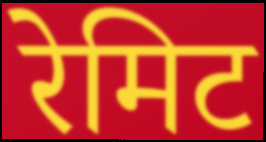
रेमिट